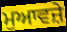
ਮੁਆਵਜ਼ੇ